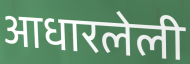
आधारलेली